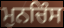
ਮੁਨਚਿੰਸ